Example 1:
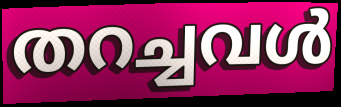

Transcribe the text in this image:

തറച്ചവൾ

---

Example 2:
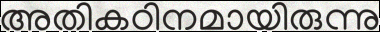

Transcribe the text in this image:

അതികഠിനമായിരുന്നു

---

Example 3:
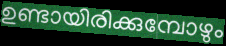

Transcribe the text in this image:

ഉണ്ടായിരിക്കുമ്പോഴും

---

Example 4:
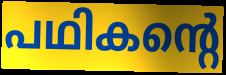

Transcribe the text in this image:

പഥികന്റെ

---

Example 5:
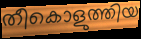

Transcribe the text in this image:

തീകൊളുത്തിയ